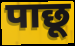
पाछू